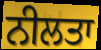
ਨੀਲਤਾ